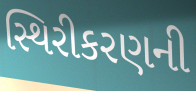
સ્થિરીકરણની